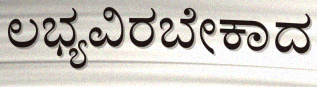
ಲಭ್ಯವಿರಬೇಕಾದ